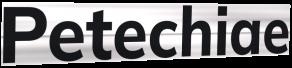
Petechiae